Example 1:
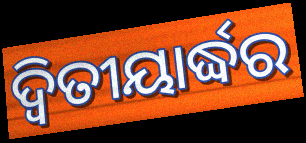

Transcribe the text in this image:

ଦ୍ୱିତୀୟାର୍ଦ୍ଧର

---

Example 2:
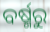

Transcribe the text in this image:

ବର୍ଷ୍ମରୁ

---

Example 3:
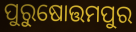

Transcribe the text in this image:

ପୁରୁଷୋତ୍ତମପୁର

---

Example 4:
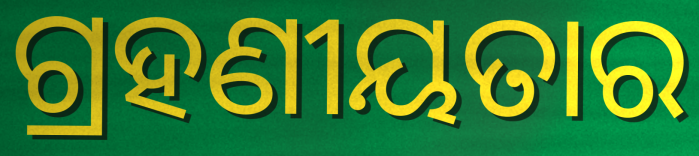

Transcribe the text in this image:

ଗ୍ରହଣୀୟତାର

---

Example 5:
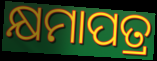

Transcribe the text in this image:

କ୍ଷମାପତ୍ର